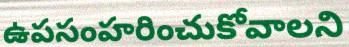
ఉపసంహరించుకోవాలని